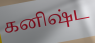
கனிஷ்ட